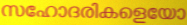
സഹോദരികളെയോ